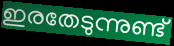
ഇരതേടുന്നുണ്ട്